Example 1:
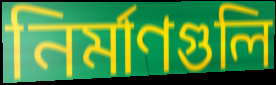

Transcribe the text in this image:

নির্মাণগুলি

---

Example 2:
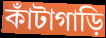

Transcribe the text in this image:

কাঁটাগাড়ি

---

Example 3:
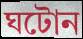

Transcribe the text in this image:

ঘটোন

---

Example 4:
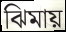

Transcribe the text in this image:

ঝিমায়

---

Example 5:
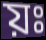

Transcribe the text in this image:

য়ঃ